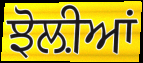
ਝੋਲ਼ੀਆਂ